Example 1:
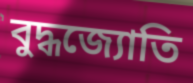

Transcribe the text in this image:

বুদ্ধজ্যোতি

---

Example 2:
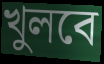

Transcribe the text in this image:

খুলবে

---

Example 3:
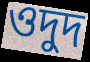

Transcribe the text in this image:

ওদুদ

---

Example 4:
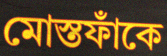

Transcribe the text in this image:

মোস্তফাঁকে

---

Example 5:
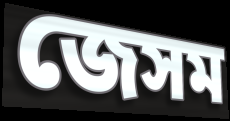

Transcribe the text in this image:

জেসম